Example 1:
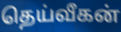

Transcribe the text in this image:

தெய்வீகன்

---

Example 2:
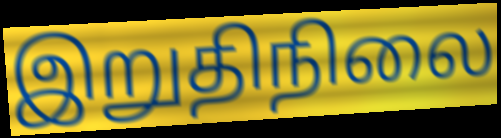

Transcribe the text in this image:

இறுதிநிலை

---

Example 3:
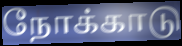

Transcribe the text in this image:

நோக்காடு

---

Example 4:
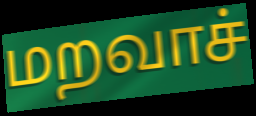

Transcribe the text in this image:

மறவாச்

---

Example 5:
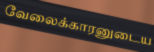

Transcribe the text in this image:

வேலைக்காரனுடைய